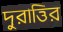
দুরাত্তির